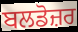
ਬਲਡੋਜ਼ਰ